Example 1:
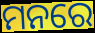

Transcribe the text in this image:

ମନରେ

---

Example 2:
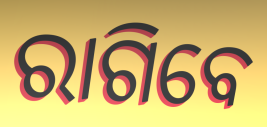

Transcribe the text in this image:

ରାଗିବେ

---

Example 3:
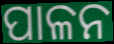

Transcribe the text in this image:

ପାଳନ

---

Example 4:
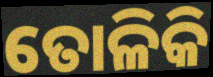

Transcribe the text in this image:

ତୋଳିକି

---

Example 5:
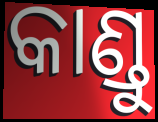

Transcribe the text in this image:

କାଣ୍ଡୁ